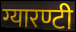
ग्यारण्टी